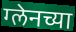
ग्लेनच्या